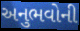
અનુભવોની